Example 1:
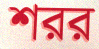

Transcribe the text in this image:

শরর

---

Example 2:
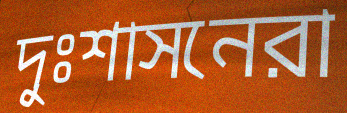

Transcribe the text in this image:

দুঃশাসনেরা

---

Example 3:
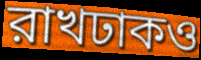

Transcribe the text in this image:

রাখঢাকও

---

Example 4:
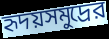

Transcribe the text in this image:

হৃদয়সমুদ্রের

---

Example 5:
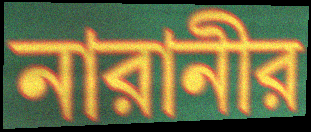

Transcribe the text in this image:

নারানীর